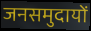
जनसमुदायों